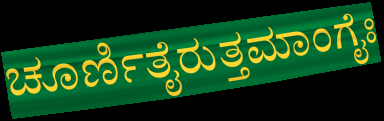
ಚೂರ್ಣಿತೈರುತ್ತಮಾಂಗೈಃ